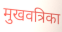
मुखवत्रिका